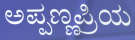
ಅಪ್ಪಣ್ಣಪ್ರಿಯ